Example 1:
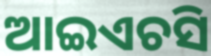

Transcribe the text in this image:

ଆଇଏଚସି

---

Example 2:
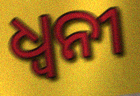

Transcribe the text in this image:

ଧ୍ବନୀ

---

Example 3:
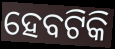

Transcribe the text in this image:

ହେବଟିକି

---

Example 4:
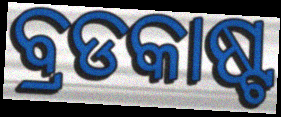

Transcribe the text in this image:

ବ୍ରଡକାଷ୍ଟ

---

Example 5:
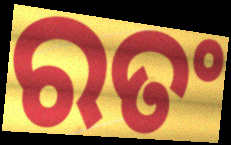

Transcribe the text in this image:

ରତଂ